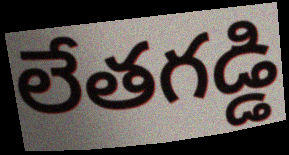
లేతగడ్డి